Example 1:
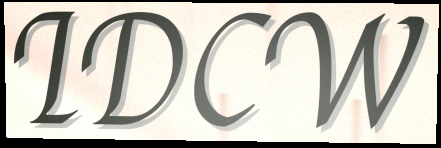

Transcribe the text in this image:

IDCW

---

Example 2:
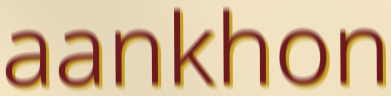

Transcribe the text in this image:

aankhon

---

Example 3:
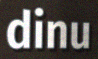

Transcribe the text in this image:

dinu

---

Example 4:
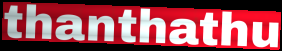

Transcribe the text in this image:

thanthathu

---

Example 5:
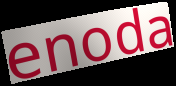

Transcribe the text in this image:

enoda